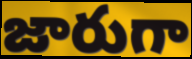
జారుగా